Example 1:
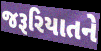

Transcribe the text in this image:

જરૂરિયાતને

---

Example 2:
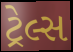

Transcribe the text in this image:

ટ્રેલ્સ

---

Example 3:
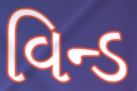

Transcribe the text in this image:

વિન્ડ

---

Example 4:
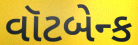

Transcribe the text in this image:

વૉટબેન્ક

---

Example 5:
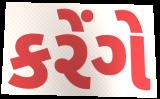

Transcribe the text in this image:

કરેંગે